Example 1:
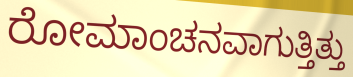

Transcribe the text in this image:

ರೋಮಾಂಚನವಾಗುತ್ತಿತ್ತು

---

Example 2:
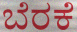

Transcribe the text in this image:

ಬೆರಕೆ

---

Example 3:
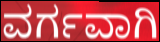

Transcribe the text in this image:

ವರ್ಗವಾಗಿ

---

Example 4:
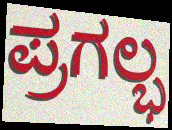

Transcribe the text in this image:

ಪ್ರಗಲ್ಭ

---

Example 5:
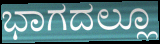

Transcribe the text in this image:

ಭಾಗದಲ್ಲೂ